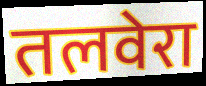
तलवेरा